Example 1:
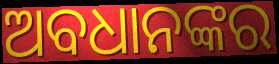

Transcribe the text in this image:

ଅବଧାନଙ୍କର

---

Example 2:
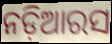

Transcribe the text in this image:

ନଡ଼ିଆରସ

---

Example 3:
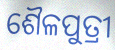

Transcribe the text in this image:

ଶୈଳପୁତ୍ରୀ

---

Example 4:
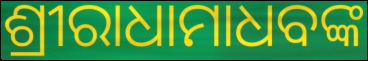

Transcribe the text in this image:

ଶ୍ରୀରାଧାମାଧବଙ୍କ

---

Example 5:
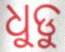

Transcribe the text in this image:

ଧୁଡୁ